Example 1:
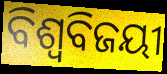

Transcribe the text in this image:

ବିଶ୍ବବିଜୟୀ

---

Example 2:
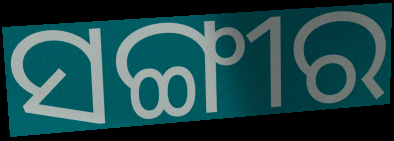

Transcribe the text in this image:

ସଙ୍ଗୀର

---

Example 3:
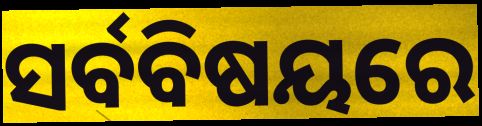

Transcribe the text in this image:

ସର୍ବବିଷୟରେ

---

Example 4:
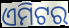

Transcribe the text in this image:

ଏମିଟର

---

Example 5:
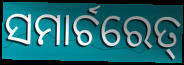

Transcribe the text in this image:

ସମାର୍ଚରେତ୍